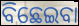
ବିଛେଇବା